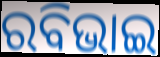
ରବିଭାଇ